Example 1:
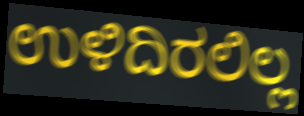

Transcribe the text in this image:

ಉಳಿದಿರಲಿಲ್ಲ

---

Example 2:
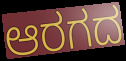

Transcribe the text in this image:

ಆರಗದ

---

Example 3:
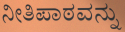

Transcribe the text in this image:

ನೀತಿಪಾಠವನ್ನು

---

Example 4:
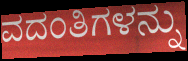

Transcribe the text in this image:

ವದಂತಿಗಳನ್ನು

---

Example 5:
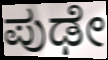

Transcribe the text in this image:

ಪುಢೇ